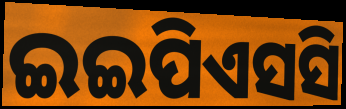
ଇଇପିଏସସି